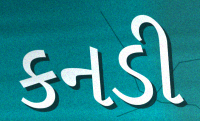
કનડી